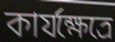
কার্যক্ষেত্রে